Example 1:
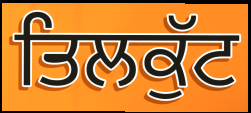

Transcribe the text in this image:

ਤਿਲਕੁੱਟ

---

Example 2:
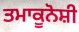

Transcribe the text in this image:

ਤਮਾਕੂਨੋਸ਼ੀ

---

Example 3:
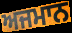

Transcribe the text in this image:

ਅਜਮਾਨ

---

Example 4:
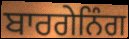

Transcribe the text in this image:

ਬਾਰਗੇਨਿੰਗ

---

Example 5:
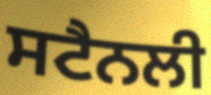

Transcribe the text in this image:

ਸਟੈਨਲੀ